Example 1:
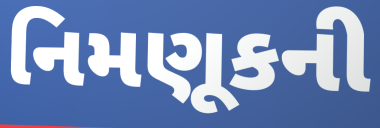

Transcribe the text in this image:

નિમણૂકની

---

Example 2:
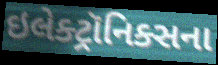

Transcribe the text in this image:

ઇલેક્ટ્રૉનિક્સના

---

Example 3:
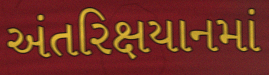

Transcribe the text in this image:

અંતરિક્ષયાનમાં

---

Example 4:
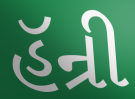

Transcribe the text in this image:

હૅન્રી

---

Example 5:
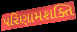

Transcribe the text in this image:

પરિણામશક્તિ